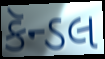
કૅન્ડલ